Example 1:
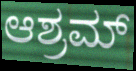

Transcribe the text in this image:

ಆಶ್ರಮ್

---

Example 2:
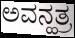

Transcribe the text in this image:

ಅವನ್ಹತ್ರ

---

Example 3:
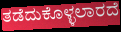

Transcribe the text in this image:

ತಡೆದುಕೊಳ್ಳಲಾರದೆ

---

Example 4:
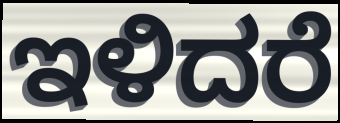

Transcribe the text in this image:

ಇಳಿದರೆ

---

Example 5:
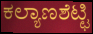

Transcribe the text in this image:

ಕಲ್ಯಾಣಶೆಟ್ಟಿ